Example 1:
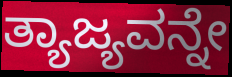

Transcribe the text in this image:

ತ್ಯಾಜ್ಯವನ್ನೇ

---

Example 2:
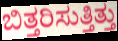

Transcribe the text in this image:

ಬಿತ್ತರಿಸುತ್ತಿತ್ತು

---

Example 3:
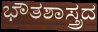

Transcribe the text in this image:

ಭೌತಶಾಸ್ತ್ರದ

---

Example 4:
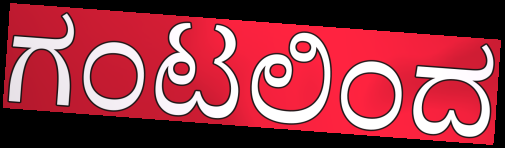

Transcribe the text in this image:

ಗಂಟಲಿಂದ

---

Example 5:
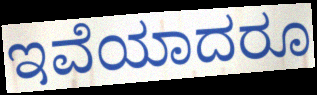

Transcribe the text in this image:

ಇವೆಯಾದರೂ